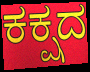
ಕಕ್ಷದ